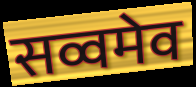
सव्वमेव